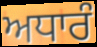
ਅਧਾਰੰ